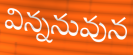
విన్ననువున